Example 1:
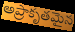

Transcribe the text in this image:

అప్రాకృతమైన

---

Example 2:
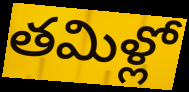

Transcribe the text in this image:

తమిళ్లో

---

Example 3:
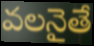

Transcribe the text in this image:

వలనైతే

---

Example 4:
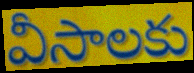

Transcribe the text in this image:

వీసాలకు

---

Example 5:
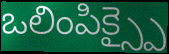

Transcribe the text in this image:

ఒలింపిక్స్పై